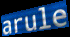
arule